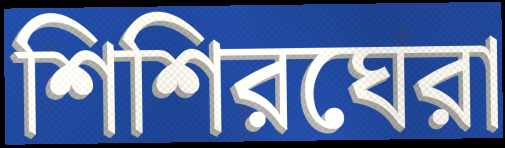
শিশিরঘেরা